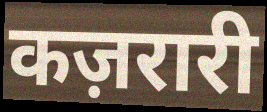
कज़रारी